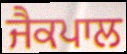
ਜੈਕਪਾਲ